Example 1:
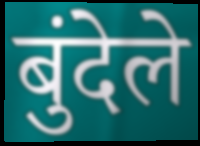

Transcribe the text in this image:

बुंदेले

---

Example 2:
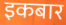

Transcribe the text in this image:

इकबार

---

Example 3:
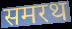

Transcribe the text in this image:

समरथ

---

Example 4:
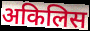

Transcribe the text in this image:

अकिलिस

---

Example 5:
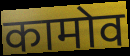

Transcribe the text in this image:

कामोव